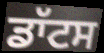
ਡਾੱਟਸ